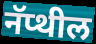
नॅप्थील